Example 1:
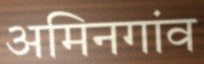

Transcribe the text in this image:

अमिनगांव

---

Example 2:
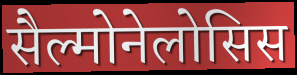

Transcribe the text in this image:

सैल्मोनेलोसिस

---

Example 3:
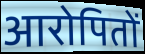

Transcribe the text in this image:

आरोपितों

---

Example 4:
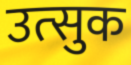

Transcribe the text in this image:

उत्‍सुक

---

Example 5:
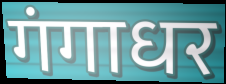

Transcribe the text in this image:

गंगाधर